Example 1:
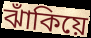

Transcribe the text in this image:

ঝাঁকিয়ে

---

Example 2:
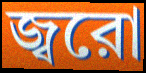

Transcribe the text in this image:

জ্বরো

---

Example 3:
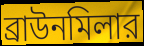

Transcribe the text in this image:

ব্রাউনমিলার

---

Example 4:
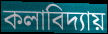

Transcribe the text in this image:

কলাবিদ্যায়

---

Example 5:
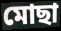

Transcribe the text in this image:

মোছা